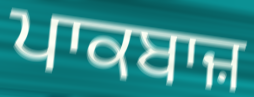
ਪਾਕਬਾਜ਼